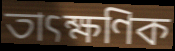
তাৎক্ষণিক